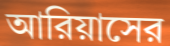
আরিয়াসের